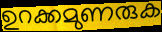
ഉറക്കമുണരുക